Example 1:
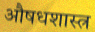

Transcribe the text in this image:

औषधशास्त्र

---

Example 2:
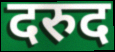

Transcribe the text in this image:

दरुद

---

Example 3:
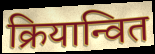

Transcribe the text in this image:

क्रियान्वित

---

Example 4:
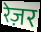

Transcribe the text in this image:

रेज़र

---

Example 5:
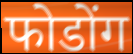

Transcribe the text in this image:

फोडोंग